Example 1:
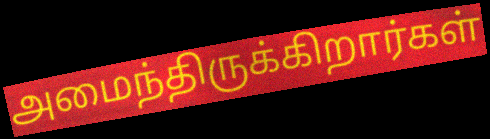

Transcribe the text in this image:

அமைந்திருக்கிறார்கள்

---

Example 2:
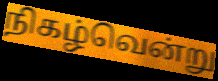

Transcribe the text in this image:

நிகழ்வென்று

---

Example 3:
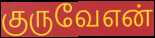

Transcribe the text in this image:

குருவேஎன்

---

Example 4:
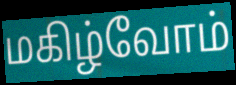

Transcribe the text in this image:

மகிழ்வோம்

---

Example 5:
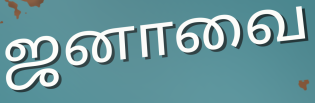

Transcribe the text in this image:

ஜனாவை